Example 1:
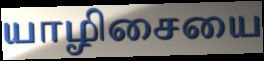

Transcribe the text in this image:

யாழிசையை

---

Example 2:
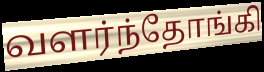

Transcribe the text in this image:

வளர்ந்தோங்கி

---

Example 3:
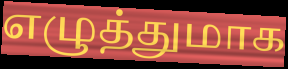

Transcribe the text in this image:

எழுத்துமாக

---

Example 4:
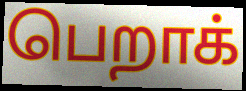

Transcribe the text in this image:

பெறாக்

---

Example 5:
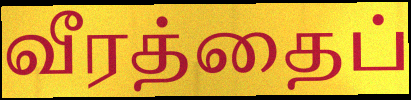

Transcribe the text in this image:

வீரத்தைப்